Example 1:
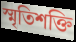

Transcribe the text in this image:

স্মৃতিশক্তি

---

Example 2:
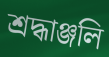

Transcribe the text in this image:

শ্ৰদ্ধাঞ্জলি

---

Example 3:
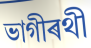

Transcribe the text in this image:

ভাগীৰথী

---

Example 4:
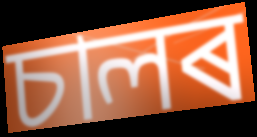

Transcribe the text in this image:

চালৰ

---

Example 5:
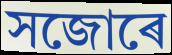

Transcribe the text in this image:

সজোৰে